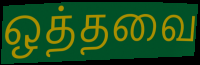
ஒத்தவை